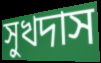
সুখদাস